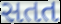
સતત